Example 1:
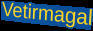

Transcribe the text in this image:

Vetirmagal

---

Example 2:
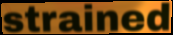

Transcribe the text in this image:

strained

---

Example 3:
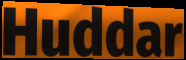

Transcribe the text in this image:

Huddar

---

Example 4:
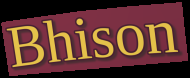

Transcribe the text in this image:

Bhison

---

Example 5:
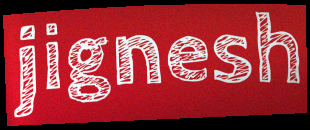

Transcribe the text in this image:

jignesh